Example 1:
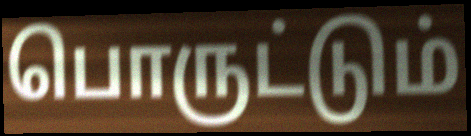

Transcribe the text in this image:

பொருட்டும்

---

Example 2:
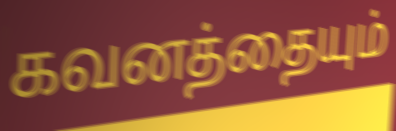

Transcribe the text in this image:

கவனத்தையும்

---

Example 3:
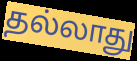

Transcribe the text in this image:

தல்லாது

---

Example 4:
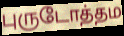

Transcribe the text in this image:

புருடோத்தம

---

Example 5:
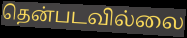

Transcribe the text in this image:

தென்படவில்லை